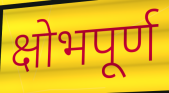
क्षोभपूर्ण